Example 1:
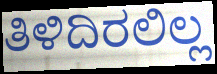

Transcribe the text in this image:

ತಿಳಿದಿರಲಿಲ್ಲ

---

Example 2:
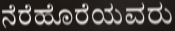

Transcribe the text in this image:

ನೆರೆಹೊರೆಯವರು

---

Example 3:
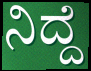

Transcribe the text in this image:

ನಿದ್ದೆ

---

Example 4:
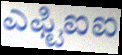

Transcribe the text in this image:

ಎಫ್ಟಿಐಐ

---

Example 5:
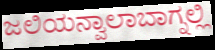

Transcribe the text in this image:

ಜಲಿಯನ್ವಾಲಾಬಾಗ್ನಲ್ಲಿ